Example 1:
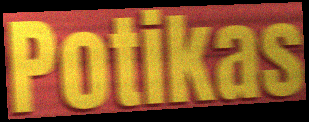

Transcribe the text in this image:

Potikas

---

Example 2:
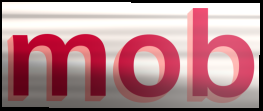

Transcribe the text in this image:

mob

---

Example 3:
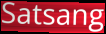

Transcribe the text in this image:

Satsang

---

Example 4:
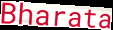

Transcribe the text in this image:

Bharata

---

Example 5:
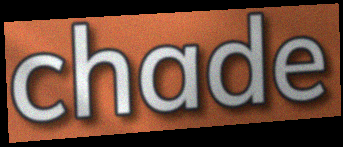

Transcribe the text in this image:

chade